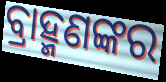
ବ୍ରାହ୍ମଣଙ୍କର